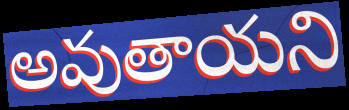
అవుతాయని